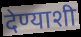
देण्याशी